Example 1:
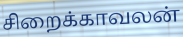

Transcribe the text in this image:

சிறைக்காவலன்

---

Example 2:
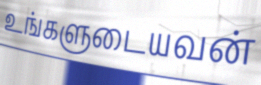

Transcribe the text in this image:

உங்களுடையவன்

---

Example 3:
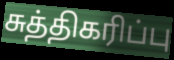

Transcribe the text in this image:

சுத்திகரிப்பு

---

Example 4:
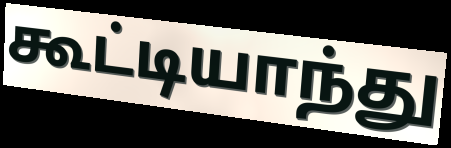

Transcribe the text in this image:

கூட்டியாந்து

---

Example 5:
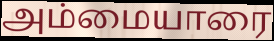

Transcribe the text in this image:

அம்மையாரை